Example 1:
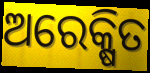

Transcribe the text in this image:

ଅରେକ୍ଷିତ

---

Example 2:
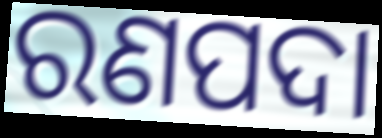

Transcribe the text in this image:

ରଣପଦା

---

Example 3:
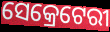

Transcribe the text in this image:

ସେକ୍ରେଟେରୀ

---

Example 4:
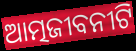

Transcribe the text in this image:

ଆତ୍ମଜୀବନୀଟି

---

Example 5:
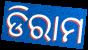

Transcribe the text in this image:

ଡିରାମ